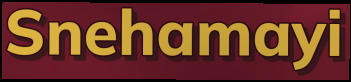
Snehamayi